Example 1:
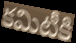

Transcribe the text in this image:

కమిటీకి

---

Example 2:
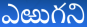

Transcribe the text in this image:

ఎఱుగని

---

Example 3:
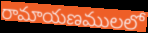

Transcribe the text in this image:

రామాయణములలో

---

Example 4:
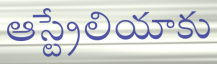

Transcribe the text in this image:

ఆస్ట్రేలియాకు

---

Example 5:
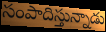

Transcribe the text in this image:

సంపాదిస్తున్నాడు